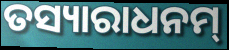
ତସ୍ୟାରାଧନମ୍